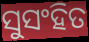
ସୁସଂହିତ